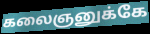
கலைஞனுக்கே